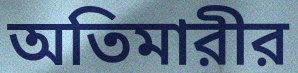
অতিমারীর